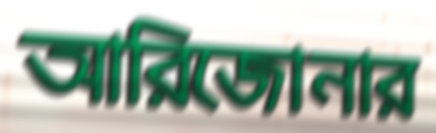
আরিজোনার